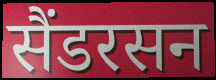
सैंडरसन